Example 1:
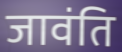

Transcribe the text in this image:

जावंति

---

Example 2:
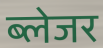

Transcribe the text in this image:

ब्लेजर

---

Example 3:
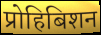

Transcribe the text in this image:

प्रोहिबिशन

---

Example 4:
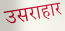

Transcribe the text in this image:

उसराहार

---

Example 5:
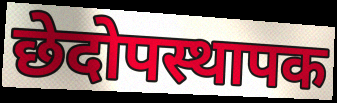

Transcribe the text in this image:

छेदोपस्थापक